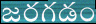
జరగడం